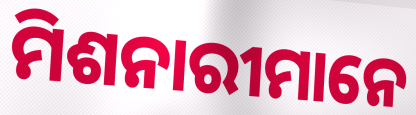
ମିଶନାରୀମାନେ